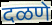
दळणे